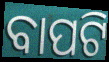
ବାପଟି